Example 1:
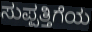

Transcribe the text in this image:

ಸುಪ್ಪತ್ತಿಗೆಯ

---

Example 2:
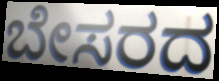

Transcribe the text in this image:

ಬೇಸರದ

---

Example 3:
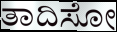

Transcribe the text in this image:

ತಾದಿಸೋ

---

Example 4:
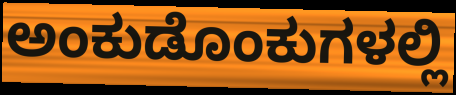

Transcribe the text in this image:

ಅಂಕುಡೊಂಕುಗಳಲ್ಲಿ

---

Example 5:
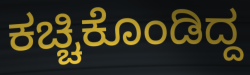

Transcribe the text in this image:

ಕಚ್ಚಿಕೊಂಡಿದ್ದ